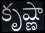
కృష్ణా